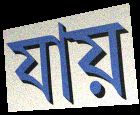
যায়